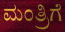
ಮಂತ್ರಿಗೆ